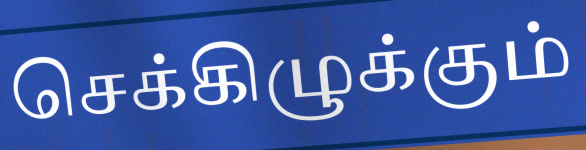
செக்கிழுக்கும்